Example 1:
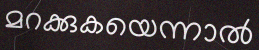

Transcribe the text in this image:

മറക്കുകയെന്നാൽ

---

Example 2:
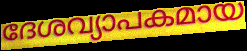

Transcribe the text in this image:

ദേശവ്യാപകമായ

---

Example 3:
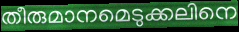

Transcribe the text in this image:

തീരുമാനമെടുക്കലിനെ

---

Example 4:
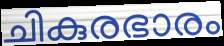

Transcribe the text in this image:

ചികുരഭാരം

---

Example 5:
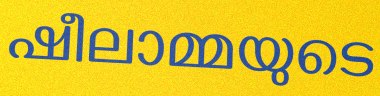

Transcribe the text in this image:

ഷീലാമ്മയുടെ